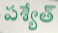
పశ్యేత్